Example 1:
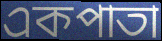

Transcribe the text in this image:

একপাতা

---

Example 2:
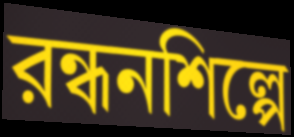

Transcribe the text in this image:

রন্ধনশিল্পে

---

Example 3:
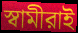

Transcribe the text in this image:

স্বামীরাই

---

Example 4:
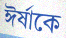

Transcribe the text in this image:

ঈর্ষাকে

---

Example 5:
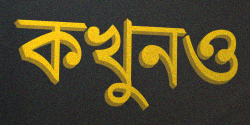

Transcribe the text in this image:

কখুনও